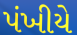
પંખીયે